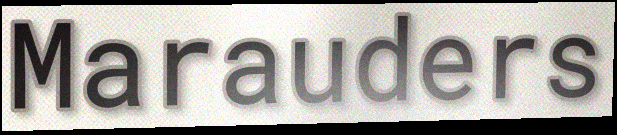
Marauders